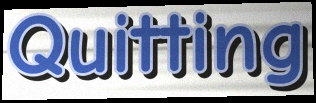
Quitting